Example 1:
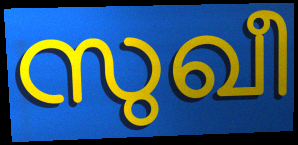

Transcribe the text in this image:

സുഖീ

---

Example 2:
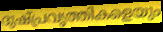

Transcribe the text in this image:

ദുഷ്പ്രവൃത്തികളെയും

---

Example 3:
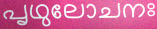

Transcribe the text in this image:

പൃഥുലോചനഃ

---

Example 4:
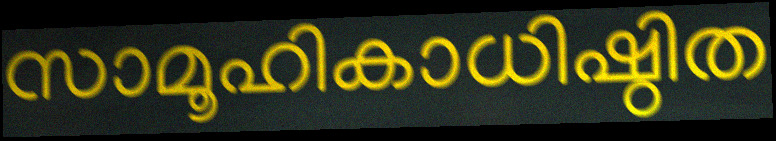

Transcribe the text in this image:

സാമൂഹികാധിഷ്ഠിത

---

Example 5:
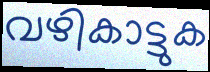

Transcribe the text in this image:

വഴികാട്ടുക